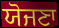
ਯੋਜਣਾ